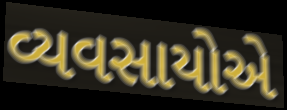
વ્યવસાયોએ